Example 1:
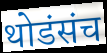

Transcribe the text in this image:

थोडंसंच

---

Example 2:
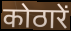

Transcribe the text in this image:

कोठारें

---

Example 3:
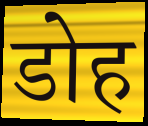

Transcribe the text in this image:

डोह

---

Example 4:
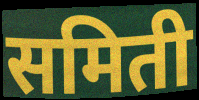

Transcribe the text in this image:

समिती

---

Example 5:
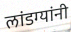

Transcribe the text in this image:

लांडग्यांनी